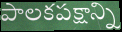
పాలకపక్షాన్ని